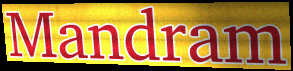
Mandram